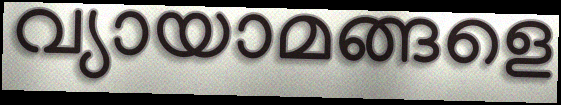
വ്യായാമങ്ങളെ